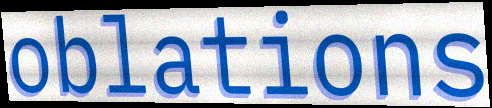
oblations